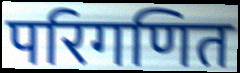
परिगणित